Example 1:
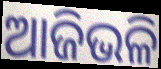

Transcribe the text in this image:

ଆଜିଭଳି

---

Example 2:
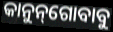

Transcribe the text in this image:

କାନୁନ୍‌ଗୋବାବୁ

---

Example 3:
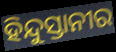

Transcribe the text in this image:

ହିନ୍ଦୁସ୍ତାନୀର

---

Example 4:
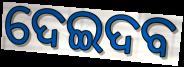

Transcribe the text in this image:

ଦେଇଦବ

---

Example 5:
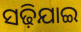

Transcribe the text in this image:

ସଢ଼ିଯାଇ